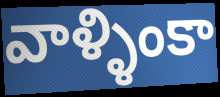
వాళ్ళింకా